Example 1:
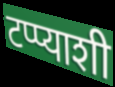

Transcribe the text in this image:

टप्प्याशी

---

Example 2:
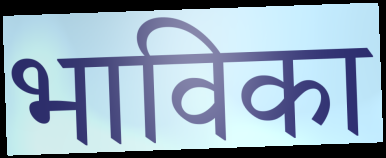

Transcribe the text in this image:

भाविका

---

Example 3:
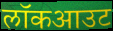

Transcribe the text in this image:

लॉकआउट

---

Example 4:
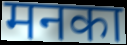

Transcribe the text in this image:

मनका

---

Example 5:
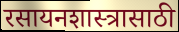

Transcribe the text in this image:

रसायनशास्त्रासाठी